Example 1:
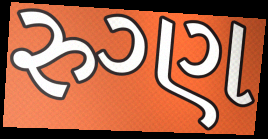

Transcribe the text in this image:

રુગ્ણ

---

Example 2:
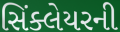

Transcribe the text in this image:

સિંક્લેયરની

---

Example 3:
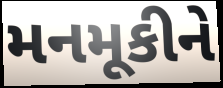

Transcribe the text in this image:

મનમૂકીને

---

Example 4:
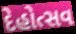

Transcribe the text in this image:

દેહોત્સવ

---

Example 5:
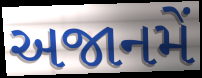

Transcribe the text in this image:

અજાનમેં